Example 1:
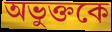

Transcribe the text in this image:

অভুক্তকে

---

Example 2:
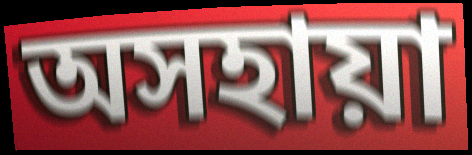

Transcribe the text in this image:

অসহায়া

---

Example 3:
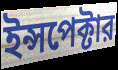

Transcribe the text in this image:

ইন্সপেক্টার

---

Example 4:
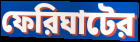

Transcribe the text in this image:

ফেরিঘাটের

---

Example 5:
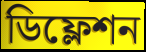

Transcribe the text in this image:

ডিফ্লেশন